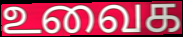
உவைக